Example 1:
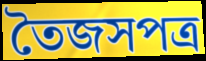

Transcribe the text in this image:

তৈজসপত্র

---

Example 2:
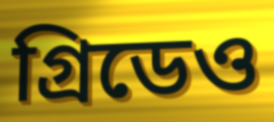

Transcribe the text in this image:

গ্রিডেও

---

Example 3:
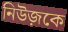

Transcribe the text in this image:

নিউজ়কে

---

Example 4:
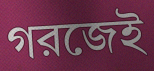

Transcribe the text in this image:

গরজেই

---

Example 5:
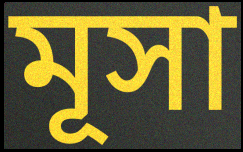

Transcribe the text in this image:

মূসা